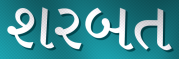
શરબત